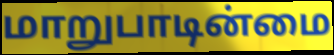
மாறுபாடின்மை